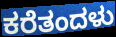
ಕರೆತಂದಳು